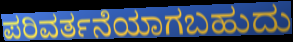
ಪರಿವರ್ತನೆಯಾಗಬಹುದು